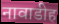
नावाडीह